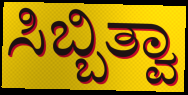
ಸಿಬ್ಬಿತ್ವಾ